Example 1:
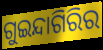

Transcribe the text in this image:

ଗୁଇନ୍ଦାଗିରିର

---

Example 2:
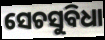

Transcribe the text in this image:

ସେଚସୁବିଧା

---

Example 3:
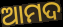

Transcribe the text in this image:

ଆମଦ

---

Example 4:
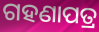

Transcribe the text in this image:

ଗହଣାପତ୍ର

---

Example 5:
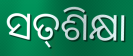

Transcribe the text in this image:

ସତ୍‌ଶିକ୍ଷା